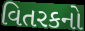
વિતરકનો